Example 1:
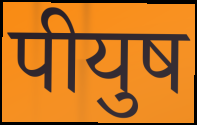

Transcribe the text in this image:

पीयुष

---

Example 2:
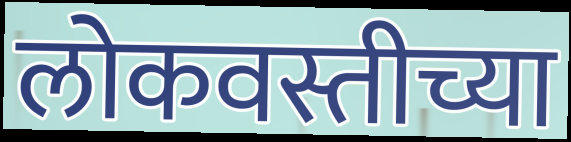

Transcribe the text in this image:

लोकवस्तीच्या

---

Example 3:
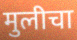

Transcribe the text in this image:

मुलीचा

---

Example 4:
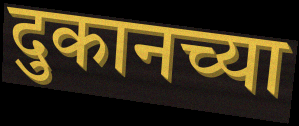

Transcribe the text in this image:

दुकानच्या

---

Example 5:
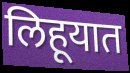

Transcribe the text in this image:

लिहूयात